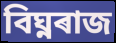
বিঘ্নৰাজ